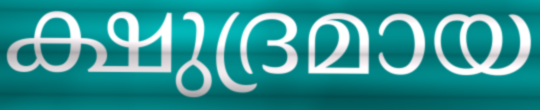
ക്ഷുദ്രമായ